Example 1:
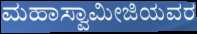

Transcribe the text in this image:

ಮಹಾಸ್ವಾಮೀಜಿಯವರ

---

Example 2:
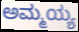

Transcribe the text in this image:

ಅಮ್ಮಯ್ಯ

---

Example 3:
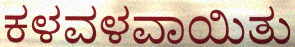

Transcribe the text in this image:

ಕಳವಳವಾಯಿತು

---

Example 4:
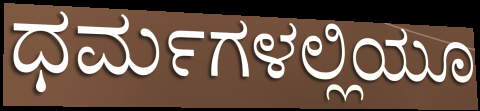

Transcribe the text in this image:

ಧರ್ಮಗಳಲ್ಲಿಯೂ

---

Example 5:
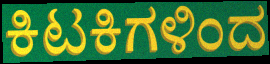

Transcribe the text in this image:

ಕಿಟಕಿಗಳಿಂದ